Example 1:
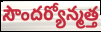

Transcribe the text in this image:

సౌందర్యోన్మత్త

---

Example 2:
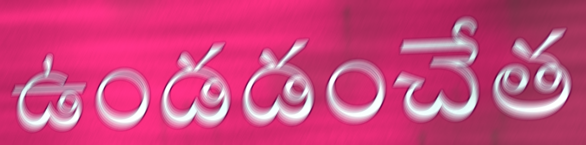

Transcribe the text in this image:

ఉండడంచేత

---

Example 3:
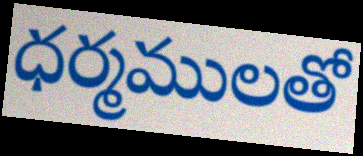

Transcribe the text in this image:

ధర్మములతో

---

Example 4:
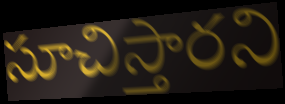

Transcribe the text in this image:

సూచిస్తారని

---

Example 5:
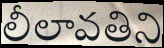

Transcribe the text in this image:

లీలావతిని